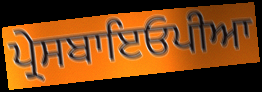
ਪ੍ਰੇਸਬਾਇਓਪੀਆ